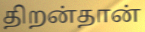
திறன்தான்